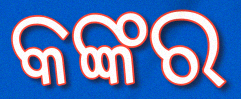
କଙ୍କର